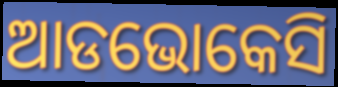
ଆଡଭୋକେସି